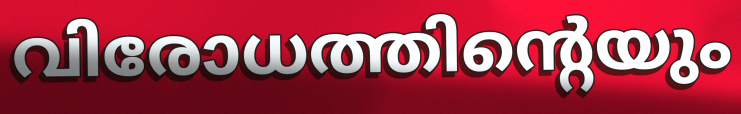
വിരോധത്തിന്റെയും